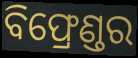
ବିଫ୍ରେଣ୍ଡର